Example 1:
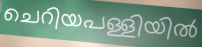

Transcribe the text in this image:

ചെറിയപള്ളിയിൽ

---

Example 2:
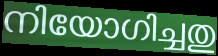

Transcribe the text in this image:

നിയോഗിച്ചതു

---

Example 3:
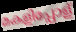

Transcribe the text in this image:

മകളിപ്പോള്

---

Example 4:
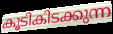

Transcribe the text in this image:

കൂടികിടക്കുന്ന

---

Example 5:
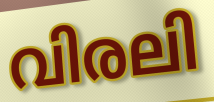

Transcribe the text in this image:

വിരലി